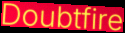
Doubtfire